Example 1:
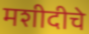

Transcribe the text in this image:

मशीदीचे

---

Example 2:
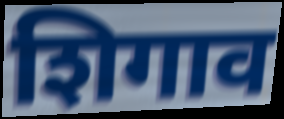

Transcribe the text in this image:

शिगाव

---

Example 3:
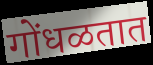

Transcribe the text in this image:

गोंधळतात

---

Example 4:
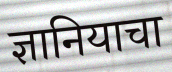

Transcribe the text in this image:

ज्ञानियाचा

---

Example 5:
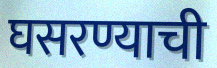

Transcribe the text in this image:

घसरण्याची